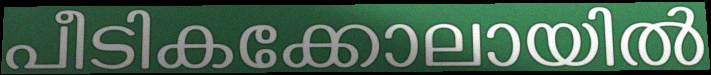
പീടികക്കോലായിൽ